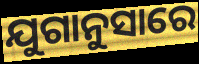
ଯୁଗାନୁସାରେ